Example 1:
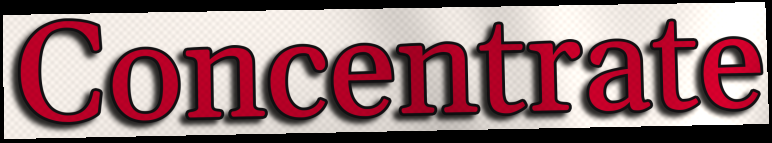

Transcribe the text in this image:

Concentrate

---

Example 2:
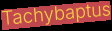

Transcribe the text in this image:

Tachybaptus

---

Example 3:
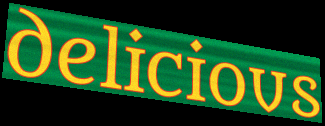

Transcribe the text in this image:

delicious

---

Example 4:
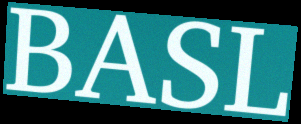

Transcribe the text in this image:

BASL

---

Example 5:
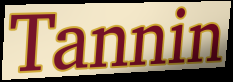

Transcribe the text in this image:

Tannin